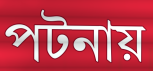
পটনায়